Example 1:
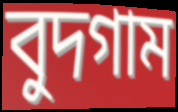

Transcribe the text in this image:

বুদগাম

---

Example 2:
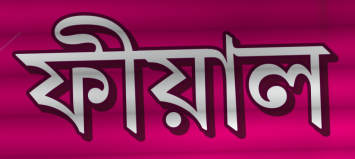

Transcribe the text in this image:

ফীয়াল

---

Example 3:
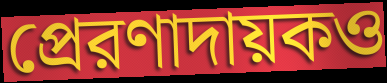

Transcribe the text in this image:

প্রেরণাদায়কও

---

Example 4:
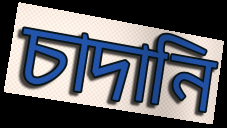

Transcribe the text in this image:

চাদানি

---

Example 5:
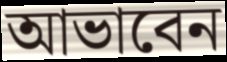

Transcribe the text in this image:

আভাবেন